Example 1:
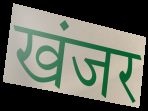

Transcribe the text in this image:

खंजर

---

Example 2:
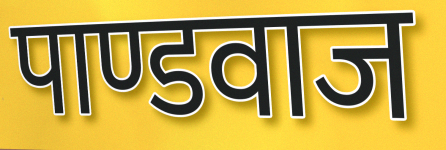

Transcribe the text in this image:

पाण्डवाज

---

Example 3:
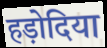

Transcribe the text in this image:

हड़ोदिया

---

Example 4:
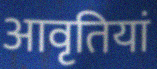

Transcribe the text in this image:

आवृतियां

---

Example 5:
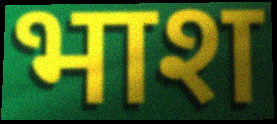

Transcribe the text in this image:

भाश